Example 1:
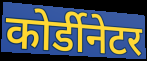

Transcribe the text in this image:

कोर्डीनेटर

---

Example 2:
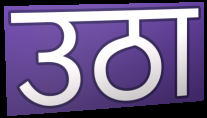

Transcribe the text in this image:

उठा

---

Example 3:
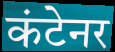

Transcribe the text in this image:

कंटेनर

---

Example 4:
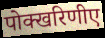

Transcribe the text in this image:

पोक्खरिणीए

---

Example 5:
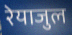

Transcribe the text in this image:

रेयाजुल